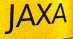
JAXA